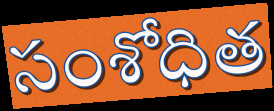
సంశోధిత